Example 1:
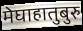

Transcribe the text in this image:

मेघाहातुबुरु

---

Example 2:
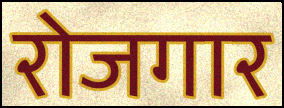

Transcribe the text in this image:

रोजगार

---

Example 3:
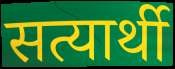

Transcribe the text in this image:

सत्यार्थी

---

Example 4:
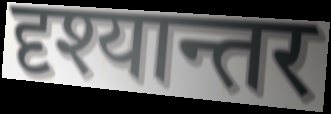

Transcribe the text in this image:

दृश्यान्तर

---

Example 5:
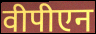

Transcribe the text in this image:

वीपीएन